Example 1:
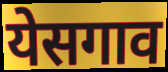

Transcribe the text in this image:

येसगाव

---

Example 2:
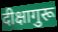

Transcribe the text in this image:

दीक्षागुरू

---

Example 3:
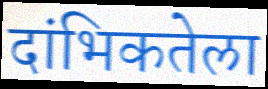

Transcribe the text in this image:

दांभिकतेला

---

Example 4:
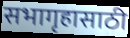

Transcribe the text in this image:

सभागृहासाठी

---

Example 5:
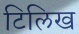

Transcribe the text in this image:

टिलिख